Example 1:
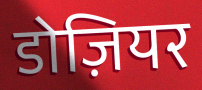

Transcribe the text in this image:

डोज़ियर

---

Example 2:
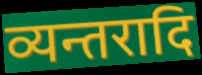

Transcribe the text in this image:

व्यन्तरादि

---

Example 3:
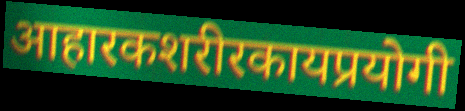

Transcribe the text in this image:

आहारकशरीरकायप्रयोगी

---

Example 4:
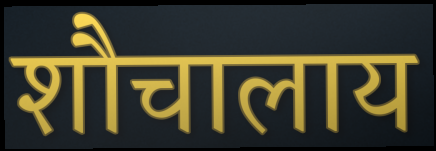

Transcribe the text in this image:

शौचालाय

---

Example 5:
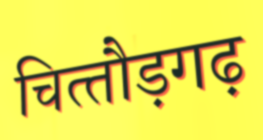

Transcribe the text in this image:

चित्‍तौड़गढ़